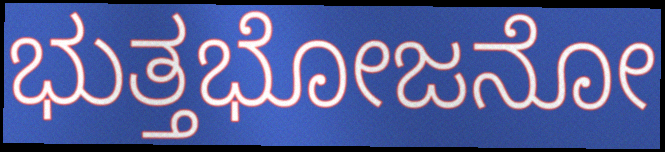
ಭುತ್ತಭೋಜನೋ